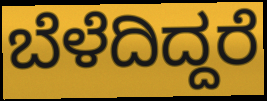
ಬೆಳೆದಿದ್ದರೆ